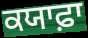
ਕਯਾਫ਼ਾ